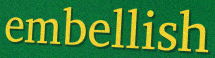
embellish